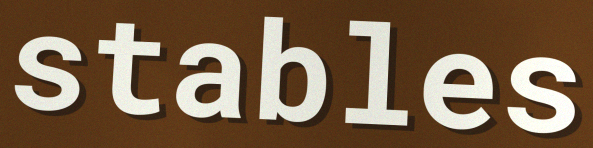
stables